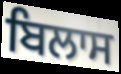
ਬਿਲਾਸ